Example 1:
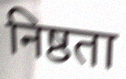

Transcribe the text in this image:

निष्ठता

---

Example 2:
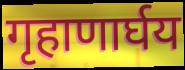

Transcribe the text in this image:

गृहाणार्घय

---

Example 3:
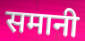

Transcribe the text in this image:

समानी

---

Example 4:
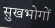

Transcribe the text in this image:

सुखभोगों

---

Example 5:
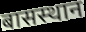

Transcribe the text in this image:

बासस्थान